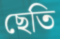
ছেতি